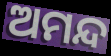
ଅମନ୍ଦ